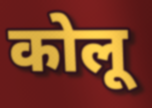
कोलू